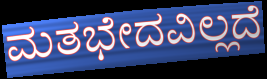
ಮತಭೇದವಿಲ್ಲದೆ